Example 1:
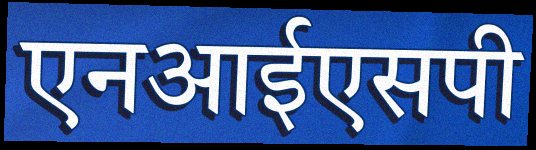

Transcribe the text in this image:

एनआईएसपी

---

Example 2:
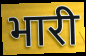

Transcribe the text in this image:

भारी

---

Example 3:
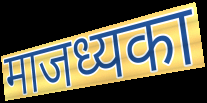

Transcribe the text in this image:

माजध्यका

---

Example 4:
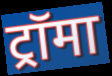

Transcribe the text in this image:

ट्रॉमा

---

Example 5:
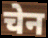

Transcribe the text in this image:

चेन